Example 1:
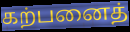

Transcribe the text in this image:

கற்பனைத்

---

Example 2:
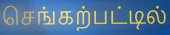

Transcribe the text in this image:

செங்கற்பட்டில்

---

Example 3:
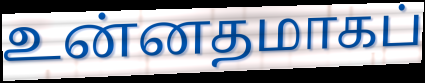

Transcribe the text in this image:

உன்னதமாகப்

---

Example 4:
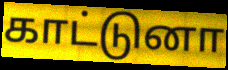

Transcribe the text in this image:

காட்டுனா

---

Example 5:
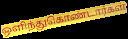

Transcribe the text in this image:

ஒளிந்துகொண்டார்கள்